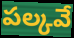
పల్కవే